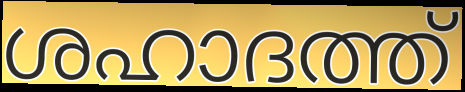
ശഹാദത്ത്